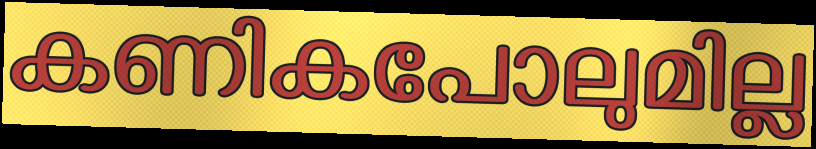
കണികപോലുമില്ല